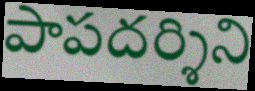
పాపదర్శిని